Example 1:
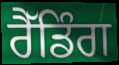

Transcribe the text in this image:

ਰੈੱਡਿੰਗ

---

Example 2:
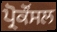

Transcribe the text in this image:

ਪ੍ਰੋਕੌਂਸਲ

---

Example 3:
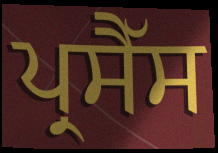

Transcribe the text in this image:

ਪ੍ਰਸੈੱਸ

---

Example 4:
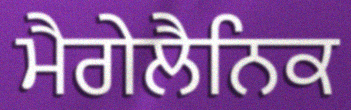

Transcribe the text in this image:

ਮੈਗੇਲੈਨਿਕ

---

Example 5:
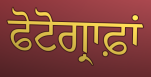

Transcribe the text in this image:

ਫੋਟੋਗ੍ਰਾਫ਼ਾਂ